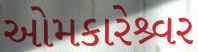
ઓમકારેશ્ર્વર